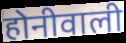
होनीवाली